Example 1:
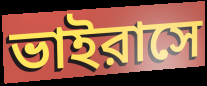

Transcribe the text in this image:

ভাইরাসে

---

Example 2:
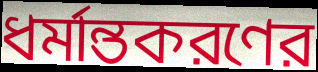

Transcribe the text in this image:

ধর্মান্তকরণের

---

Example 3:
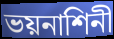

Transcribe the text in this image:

ভয়নাশিনী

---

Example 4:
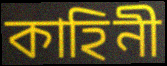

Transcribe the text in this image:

কাহিনী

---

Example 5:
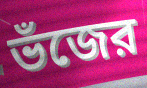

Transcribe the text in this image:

ভঁজের